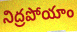
నిద్రపోయాం